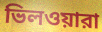
ভিলওয়ারা